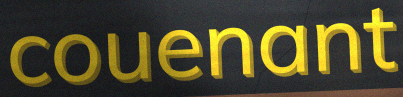
couenant